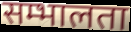
सम्भालता